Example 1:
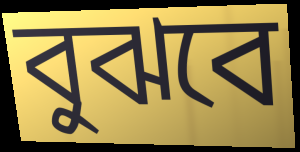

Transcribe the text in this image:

বুঝবে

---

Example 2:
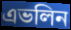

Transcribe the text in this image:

এভলিন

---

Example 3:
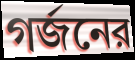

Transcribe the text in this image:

গর্জনের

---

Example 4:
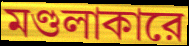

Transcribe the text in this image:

মণ্ডলাকারে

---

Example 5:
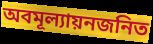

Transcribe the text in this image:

অবমূল্যায়নজনিত